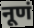
नूणं